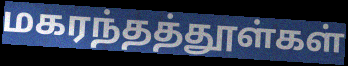
மகரந்தத்தூள்கள்